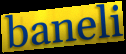
baneli